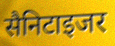
सैनिटाइजर